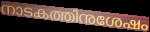
നാടകത്തിനുശേഷം